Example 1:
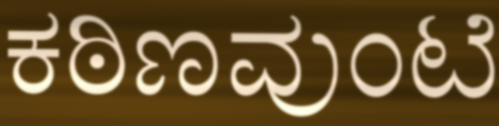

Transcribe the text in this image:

ಕಠಿಣವುಂಟೆ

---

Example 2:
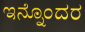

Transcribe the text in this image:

ಇನ್ನೊಂದರ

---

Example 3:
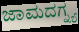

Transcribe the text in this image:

ಜಾಮದಗ್ನ್ಯ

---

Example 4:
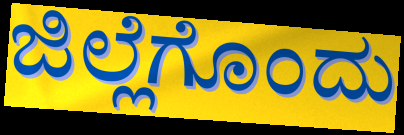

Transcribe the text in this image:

ಜಿಲ್ಲೆಗೊಂದು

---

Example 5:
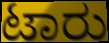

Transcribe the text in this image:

ಟಾರು